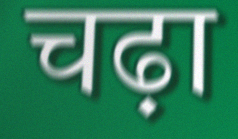
चढ़ा